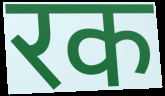
रक